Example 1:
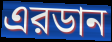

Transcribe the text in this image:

এরডান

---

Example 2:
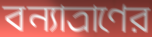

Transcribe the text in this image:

বন্যাত্রাণের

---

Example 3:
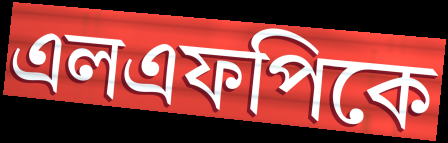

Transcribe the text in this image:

এলএফপিকে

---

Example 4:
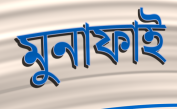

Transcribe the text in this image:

মুনাফাই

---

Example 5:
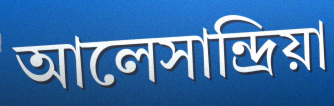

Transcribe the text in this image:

আলেসান্দ্রিয়া